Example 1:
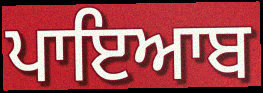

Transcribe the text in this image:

ਪਾਇਆਬ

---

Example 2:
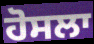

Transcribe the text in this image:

ਹੋਸਲਾ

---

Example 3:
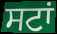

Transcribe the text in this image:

ਸਟਾਂ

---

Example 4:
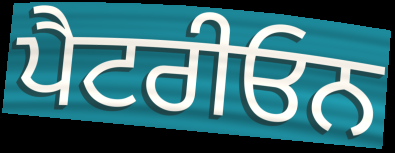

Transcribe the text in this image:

ਪੈਟਰੀਓਨ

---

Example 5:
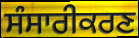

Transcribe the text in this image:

ਸੰਸਾਰੀਕਰਣ